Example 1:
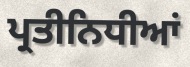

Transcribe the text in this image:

ਪ੍ਰਤੀਨਿਧੀਆਂ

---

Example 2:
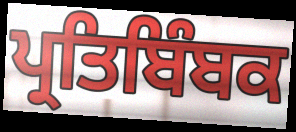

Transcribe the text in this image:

ਪ੍ਰਤਿਬਿੰਬਕ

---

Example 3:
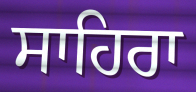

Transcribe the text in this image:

ਸਾਹਿਰਾ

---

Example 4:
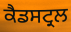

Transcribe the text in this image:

ਕੈਡਸਟ੍ਰਲ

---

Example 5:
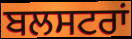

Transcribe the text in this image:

ਬਲਸਟਰਾਂ